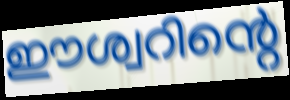
ഈശ്വറിന്റെ